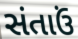
સંતાઉં